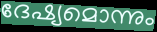
ദേഷ്യമൊന്നും